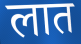
लात